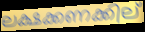
ലക്ഷക്കണക്കില്